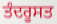
ਤੰਦਰੂਸਤ